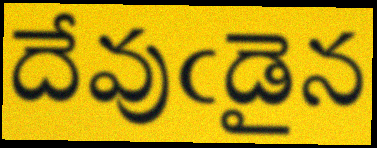
దేవుఁడైన